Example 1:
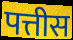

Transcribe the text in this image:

पत्तीस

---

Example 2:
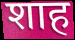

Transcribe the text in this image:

शाह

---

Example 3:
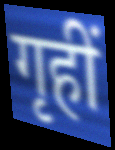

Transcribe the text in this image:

गृहीं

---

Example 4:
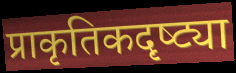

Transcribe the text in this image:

प्राकृतिकदृष्ट्या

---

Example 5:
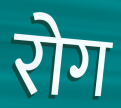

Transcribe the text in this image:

रोग